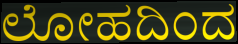
ಲೋಹದಿಂದ